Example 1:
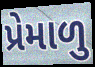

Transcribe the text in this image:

પ્રેમાળુ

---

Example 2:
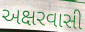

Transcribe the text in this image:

અક્ષરવાસી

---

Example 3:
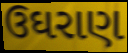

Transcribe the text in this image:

ઉઘરાણ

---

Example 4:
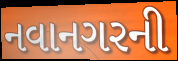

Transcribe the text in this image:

નવાનગરની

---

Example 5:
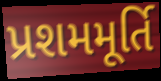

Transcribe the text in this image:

પ્રશમમૂર્તિ